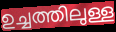
ഉച്ചത്തിലുള്ള